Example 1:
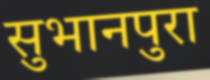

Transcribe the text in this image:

सुभानपुरा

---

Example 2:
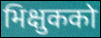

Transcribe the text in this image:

भिक्षुकको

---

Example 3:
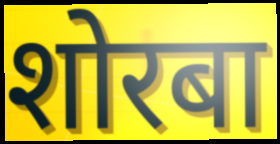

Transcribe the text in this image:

शोरबा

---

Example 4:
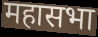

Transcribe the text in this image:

महासभा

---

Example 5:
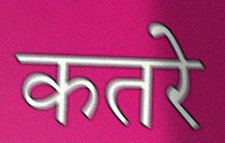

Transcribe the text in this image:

कतरे